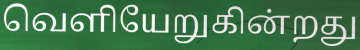
வெளியேறுகின்றது